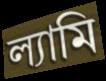
ল্যামি